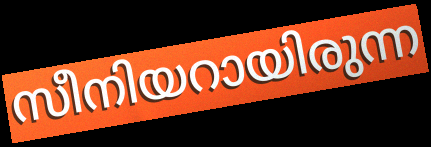
സീനിയറായിരുന്ന